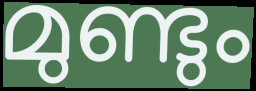
മുണ്ടും